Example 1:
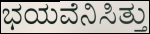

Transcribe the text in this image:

ಭಯವೆನಿಸಿತ್ತು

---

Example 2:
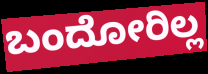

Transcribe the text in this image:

ಬಂದೋರಿಲ್ಲ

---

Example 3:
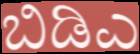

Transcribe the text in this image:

ಬಿಡಿಎ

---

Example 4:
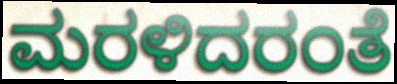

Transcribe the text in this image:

ಮರಳಿದರಂತೆ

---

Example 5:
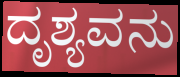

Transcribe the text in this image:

ದೃಶ್ಯವನು